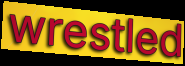
wrestled